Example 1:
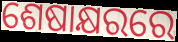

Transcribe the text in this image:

ଶେଷାକ୍ଷରରେ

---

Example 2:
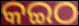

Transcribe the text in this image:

କଇଠ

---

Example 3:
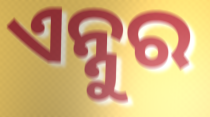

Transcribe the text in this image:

ଏନ୍ନୁର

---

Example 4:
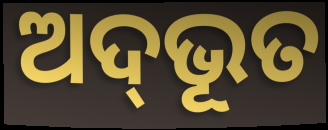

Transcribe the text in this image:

ଅଦ୍‌ଭୂତ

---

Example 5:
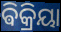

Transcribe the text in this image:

ଵିକ୍ରିୟା